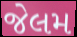
જેલમ